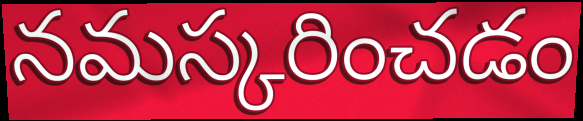
నమస్కరించడం